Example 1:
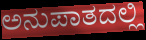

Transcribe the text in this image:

ಅನುಪಾತದಲ್ಲಿ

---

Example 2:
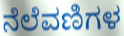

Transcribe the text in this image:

ನೆಲೆವಣಿಗಳ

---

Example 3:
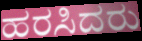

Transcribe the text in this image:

ಹರಸಿದರು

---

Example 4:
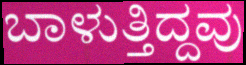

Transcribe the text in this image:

ಬಾಳುತ್ತಿದ್ದವು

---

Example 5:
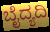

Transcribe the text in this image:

ಬೈದ್ಯದಿ